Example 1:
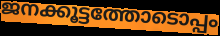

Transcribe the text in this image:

ജനക്കൂട്ടത്തോടൊപ്പം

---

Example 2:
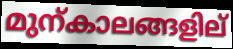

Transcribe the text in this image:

മുന്കാലങ്ങളില്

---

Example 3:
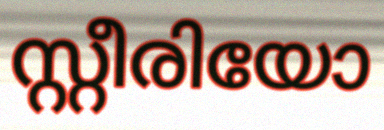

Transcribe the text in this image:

സ്റ്റീരിയോ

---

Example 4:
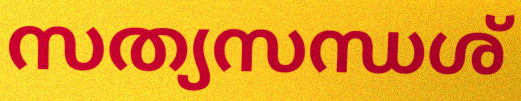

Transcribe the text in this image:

സത്യസന്ധശ്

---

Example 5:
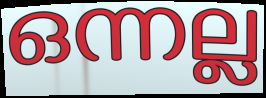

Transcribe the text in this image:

ഒന്നല്ല